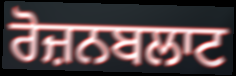
ਰੋਜ਼ਨਬਲਾਟ